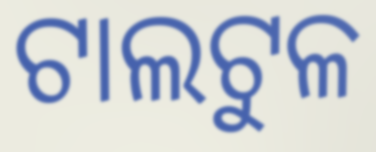
ଟାଲଟୁଳ